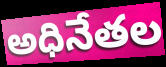
అధినేతల